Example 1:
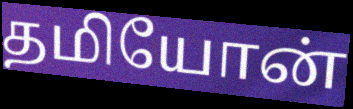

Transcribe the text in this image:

தமியோன்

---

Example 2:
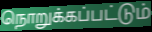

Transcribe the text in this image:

நொறுக்கப்பட்டும்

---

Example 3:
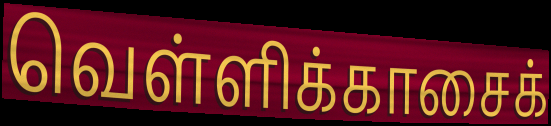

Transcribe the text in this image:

வெள்ளிக்காசைக்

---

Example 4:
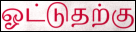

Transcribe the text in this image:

ஓட்டுதற்கு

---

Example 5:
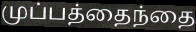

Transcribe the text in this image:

முப்பத்தைந்தை